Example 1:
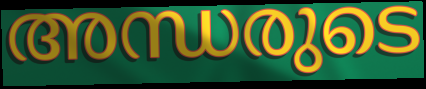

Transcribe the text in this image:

അന്ധരുടെ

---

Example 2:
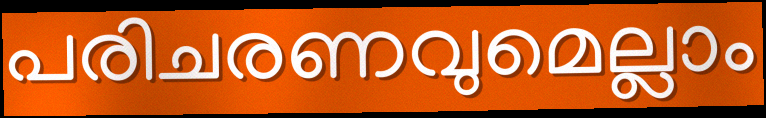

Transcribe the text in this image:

പരിചരണവുമെല്ലാം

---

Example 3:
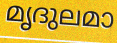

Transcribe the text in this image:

മൃദുലമാ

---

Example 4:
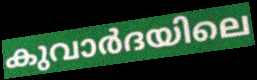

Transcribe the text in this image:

കുവാർദയിലെ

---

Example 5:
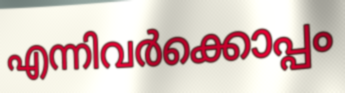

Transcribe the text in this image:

എന്നിവർക്കൊപ്പം